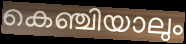
കെഞ്ചിയാലും